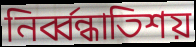
নির্ব্বন্ধাতিশয়